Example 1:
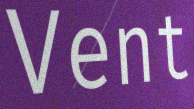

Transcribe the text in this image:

Vent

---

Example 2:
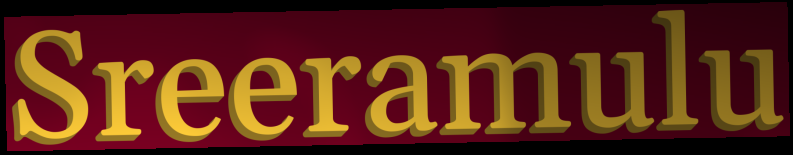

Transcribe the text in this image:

Sreeramulu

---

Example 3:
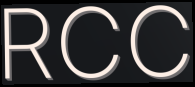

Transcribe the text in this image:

RCC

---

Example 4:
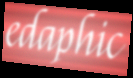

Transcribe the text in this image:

edaphic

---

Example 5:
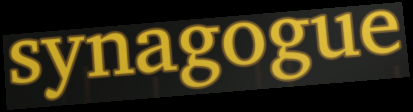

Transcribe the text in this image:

synagogue